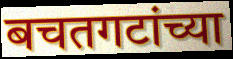
बचतगटांच्या